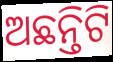
ଅଛନ୍ତିଟି